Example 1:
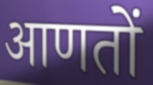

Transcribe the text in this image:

आणतों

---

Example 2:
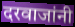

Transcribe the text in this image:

दरवाजांनी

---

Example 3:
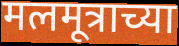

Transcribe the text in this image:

मलमूत्राच्या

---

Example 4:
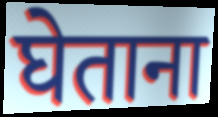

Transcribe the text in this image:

घेताना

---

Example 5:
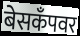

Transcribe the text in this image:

बेसकॅंपवर